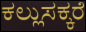
ಕಲ್ಲುಸಕ್ಕರೆ